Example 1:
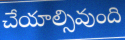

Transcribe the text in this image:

చేయాల్సివుంది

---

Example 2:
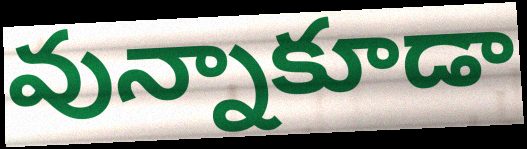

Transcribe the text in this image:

వున్నాకూడా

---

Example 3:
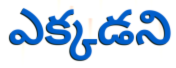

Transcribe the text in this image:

ఎక్కడని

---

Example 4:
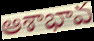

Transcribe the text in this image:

ఆశాభావ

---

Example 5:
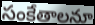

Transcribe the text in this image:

సంకేతాలనూ